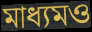
মাধ্যমও